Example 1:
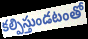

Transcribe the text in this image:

కల్పిస్తుండటంతో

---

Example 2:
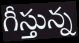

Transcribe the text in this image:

గీస్తున్న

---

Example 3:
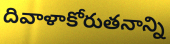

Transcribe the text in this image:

దివాళాకోరుతనాన్ని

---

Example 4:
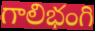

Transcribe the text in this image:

గాలిభంగి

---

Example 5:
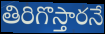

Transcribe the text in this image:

తిరిగొస్తారనే